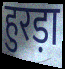
हुरड़ा